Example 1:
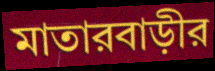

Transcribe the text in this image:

মাতারবাড়ীর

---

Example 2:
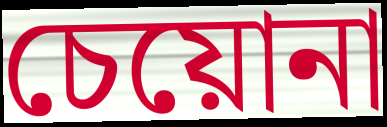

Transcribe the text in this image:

চেয়োনা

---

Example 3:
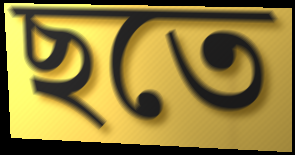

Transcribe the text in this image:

ছতে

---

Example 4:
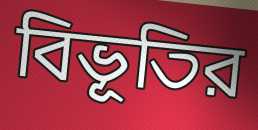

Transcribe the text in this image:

বিভূতির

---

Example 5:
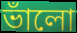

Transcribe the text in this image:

ভাঁলো